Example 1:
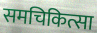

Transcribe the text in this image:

समचिकित्सा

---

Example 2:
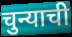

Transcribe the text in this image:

चुन्याची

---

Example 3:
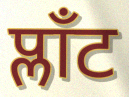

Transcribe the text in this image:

प्लाँट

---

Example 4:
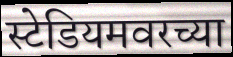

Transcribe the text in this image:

स्टेडियमवरच्या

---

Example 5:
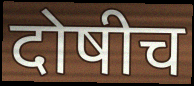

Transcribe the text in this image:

दोषीच